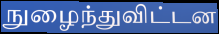
நுழைந்துவிட்டன